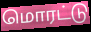
மொரட்டு